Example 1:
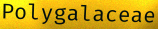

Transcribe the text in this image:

Polygalaceae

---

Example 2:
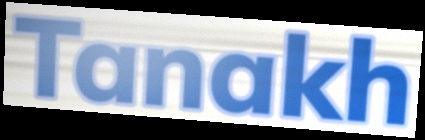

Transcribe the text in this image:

Tanakh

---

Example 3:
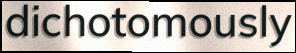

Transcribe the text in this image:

dichotomously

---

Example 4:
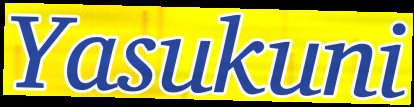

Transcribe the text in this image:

Yasukuni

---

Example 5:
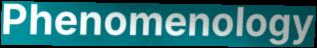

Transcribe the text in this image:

Phenomenology